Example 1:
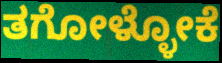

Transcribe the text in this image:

ತಗೋಳ್ಳೋಕೆ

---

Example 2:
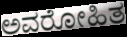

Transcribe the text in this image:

ಅವರೋಹಿತ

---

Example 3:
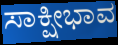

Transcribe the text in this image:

ಸಾಕ್ಷೀಭಾವ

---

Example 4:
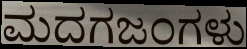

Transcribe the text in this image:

ಮದಗಜಂಗಳು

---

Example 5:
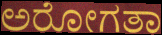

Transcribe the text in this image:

ಅರೋಗತಾ